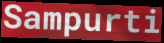
Sampurti